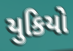
યુકિયો